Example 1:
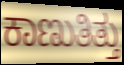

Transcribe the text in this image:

ಕಾಣುತಿತ್ತು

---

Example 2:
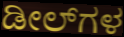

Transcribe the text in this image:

ಡೀಲ್‌ಗಳ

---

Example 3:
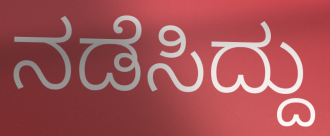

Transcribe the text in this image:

ನಡೆಸಿದ್ದು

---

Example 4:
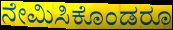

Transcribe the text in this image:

ನೇಮಿಸಿಕೊಂಡರೂ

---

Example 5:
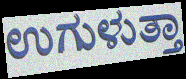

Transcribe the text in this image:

ಉಗುಳುತ್ತಾ